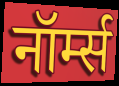
नॉर्म्स